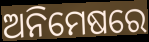
ଅନିମେଷରେ